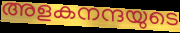
അളകനന്ദയുടെ